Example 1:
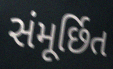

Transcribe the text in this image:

સંમૂર્છિત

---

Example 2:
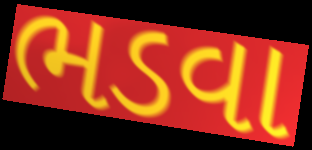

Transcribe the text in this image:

ભડવા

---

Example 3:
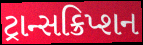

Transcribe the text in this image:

ટ્રાન્સક્રિપ્શન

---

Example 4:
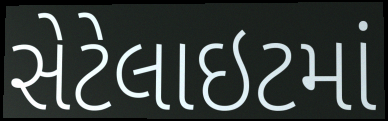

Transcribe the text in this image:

સેટેલાઇટમાં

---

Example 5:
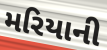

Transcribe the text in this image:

મરિયાની